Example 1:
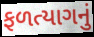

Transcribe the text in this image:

ફળત્યાગનું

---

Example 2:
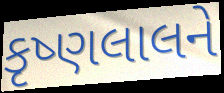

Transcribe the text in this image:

કૃષ્ણલાલને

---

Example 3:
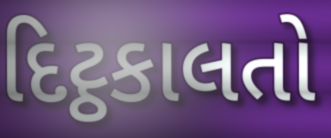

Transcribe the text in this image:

દિટ્ઠકાલતો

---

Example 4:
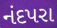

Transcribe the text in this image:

નંદપરા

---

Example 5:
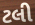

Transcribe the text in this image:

ટલી